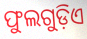
ଫୁଲଗୁଡ଼ିଏ